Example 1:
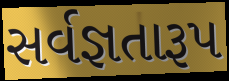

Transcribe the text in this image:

સર્વજ્ઞતારૂપ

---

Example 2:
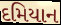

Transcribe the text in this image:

દમિયાન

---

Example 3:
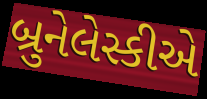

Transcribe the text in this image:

બ્રુનેલેસ્કીએ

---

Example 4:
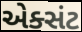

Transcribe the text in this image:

એક્સંટ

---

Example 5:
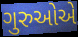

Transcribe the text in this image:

ગુરુઓએ